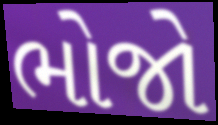
ભોજો